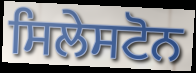
ਸਿਲੇਸਟੋਨ